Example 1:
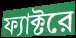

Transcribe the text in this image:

ফ্যাক্টরে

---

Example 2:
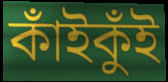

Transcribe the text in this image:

কাঁইকুঁই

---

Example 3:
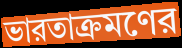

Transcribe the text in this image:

ভারতাক্রমণের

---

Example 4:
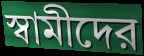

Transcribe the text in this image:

স্বামীদের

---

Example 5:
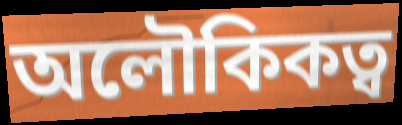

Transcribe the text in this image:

অলৌকিকত্ব